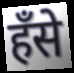
हँसे